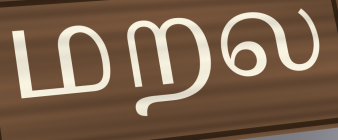
மறல